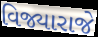
વિજ્યારાજે